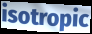
isotropic